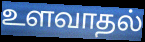
உளவாதல்